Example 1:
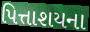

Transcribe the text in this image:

પિત્તાશયના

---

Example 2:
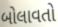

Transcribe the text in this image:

બોલાવતો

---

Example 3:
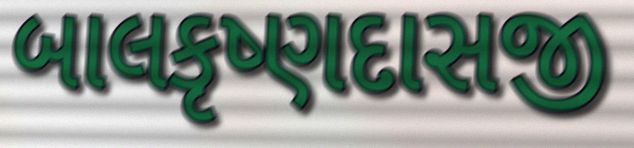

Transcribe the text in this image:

બાલકૃષ્ણદાસજી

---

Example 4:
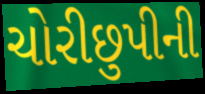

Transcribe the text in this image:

ચોરીછુપીની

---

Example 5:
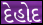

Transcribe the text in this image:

દેહોદ